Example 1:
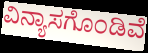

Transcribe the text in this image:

ವಿನ್ಯಾಸಗೊಂಡಿವೆ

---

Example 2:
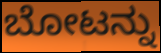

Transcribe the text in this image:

ಬೋಟನ್ನು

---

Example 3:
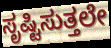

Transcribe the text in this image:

ಸೃಷ್ಟಿಸುತ್ತಲೇ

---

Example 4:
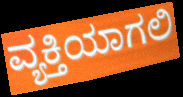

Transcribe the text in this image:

ವ್ಯಕ್ತಿಯಾಗಲಿ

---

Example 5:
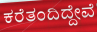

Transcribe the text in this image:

ಕರೆತಂದಿದ್ದೇವೆ